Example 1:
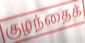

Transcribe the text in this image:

குழந்தைக்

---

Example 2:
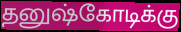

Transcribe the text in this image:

தனுஷ்கோடிக்கு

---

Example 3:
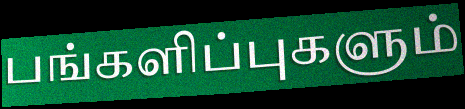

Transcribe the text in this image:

பங்களிப்புகளும்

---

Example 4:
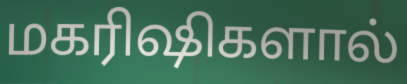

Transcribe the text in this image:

மகரிஷிகளால்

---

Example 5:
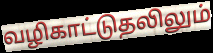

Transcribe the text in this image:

வழிகாட்டுதலிலும்